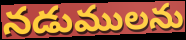
నడుములను